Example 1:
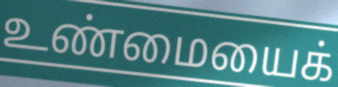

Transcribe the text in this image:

உண்மையைக்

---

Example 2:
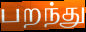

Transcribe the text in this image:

பறந்து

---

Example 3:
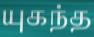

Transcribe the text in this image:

யுகந்த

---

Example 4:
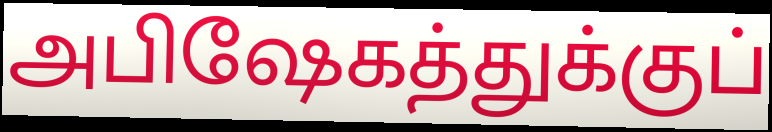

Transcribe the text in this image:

அபிஷேகத்துக்குப்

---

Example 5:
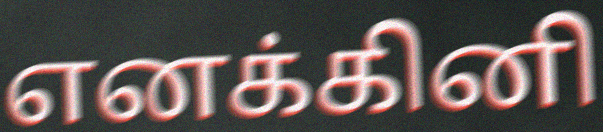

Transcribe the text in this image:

எனக்கினி